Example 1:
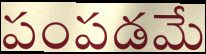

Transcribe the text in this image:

పంపడమే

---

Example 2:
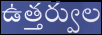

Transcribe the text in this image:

ఉత్తర్వుల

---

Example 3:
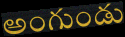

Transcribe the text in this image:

అంగుండు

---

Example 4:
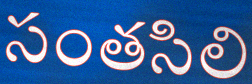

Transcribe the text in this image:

సంతసిలి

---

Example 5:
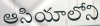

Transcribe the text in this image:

ఆసియాలోని